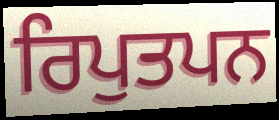
ਰਿਪੁਤਪਨ